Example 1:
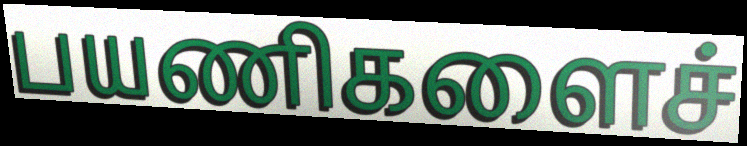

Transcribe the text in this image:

பயணிகளைச்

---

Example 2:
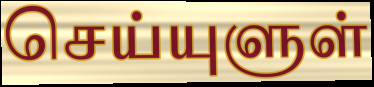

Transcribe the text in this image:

செய்யுளுள்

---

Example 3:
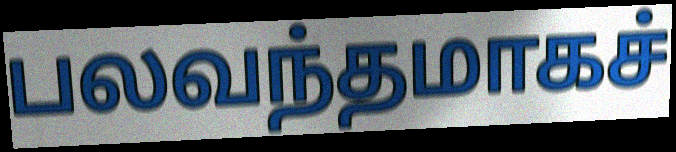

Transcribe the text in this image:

பலவந்தமாகச்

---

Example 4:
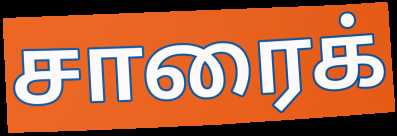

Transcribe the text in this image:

சாரைக்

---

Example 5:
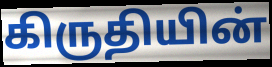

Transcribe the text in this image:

கிருதியின்